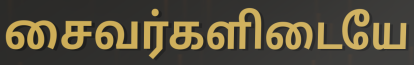
சைவர்களிடையே